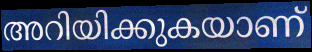
അറിയിക്കുകയാണ്